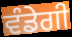
ਵੰਡੇਗੀ